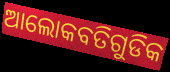
ଆଲୋକବତିଗୁଡିକ